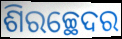
ଶିରଚ୍ଛେଦର